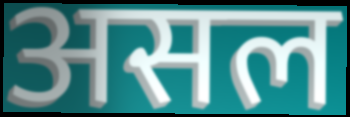
असल